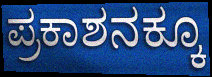
ಪ್ರಕಾಶನಕ್ಕೂ